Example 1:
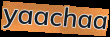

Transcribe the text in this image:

yaachaa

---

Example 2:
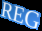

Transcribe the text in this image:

REG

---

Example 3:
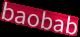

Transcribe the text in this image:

baobab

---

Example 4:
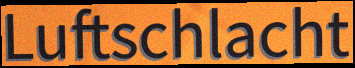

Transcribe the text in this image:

Luftschlacht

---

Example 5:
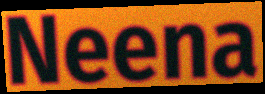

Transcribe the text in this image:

Neena